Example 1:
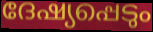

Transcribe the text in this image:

ദേഷ്യപ്പെടും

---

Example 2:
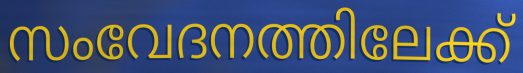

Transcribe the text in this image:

സംവേദനത്തിലേക്ക്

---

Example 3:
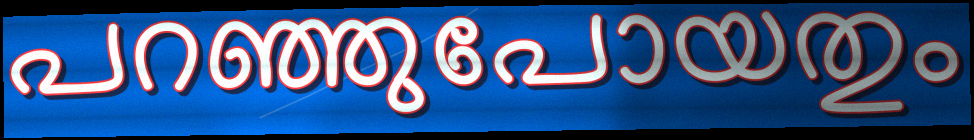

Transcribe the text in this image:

പറഞ്ഞുപോയതും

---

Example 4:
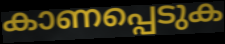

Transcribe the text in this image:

കാണപ്പെടുക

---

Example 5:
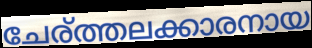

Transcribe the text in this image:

ചേര്ത്തലക്കാരനായ